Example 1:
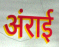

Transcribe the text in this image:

अंराई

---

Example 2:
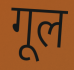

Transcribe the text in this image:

गूल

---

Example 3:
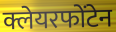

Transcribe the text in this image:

क्लेयरफोंटेन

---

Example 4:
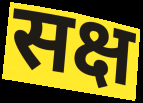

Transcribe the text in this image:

सक्ष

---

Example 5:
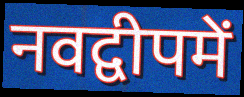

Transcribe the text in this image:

नवद्वीपमें